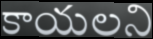
కాయలని